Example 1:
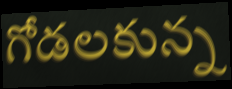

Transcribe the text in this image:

గోడలకున్న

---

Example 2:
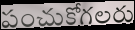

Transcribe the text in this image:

పంచుకోగలరు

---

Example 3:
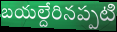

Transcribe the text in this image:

బయల్దేరినప్పటి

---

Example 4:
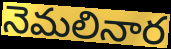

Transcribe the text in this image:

నెమలినార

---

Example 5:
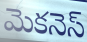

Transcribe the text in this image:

మెకనెస్